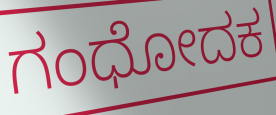
ಗಂಧೋದಕ